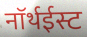
नॉर्थईस्‍ट